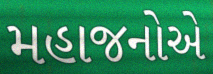
મહાજનોએ